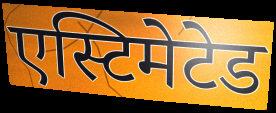
एस्टिमेटेड